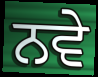
ਨਵੇ